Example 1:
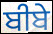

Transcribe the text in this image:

ਬੀਬੇ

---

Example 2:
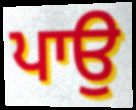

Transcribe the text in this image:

ਪਾਉ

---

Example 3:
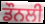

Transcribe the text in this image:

ਡੌਨਲੀ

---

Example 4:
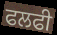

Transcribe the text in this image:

ਫਲਫੀ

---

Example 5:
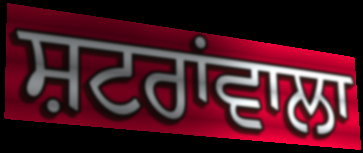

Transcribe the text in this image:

ਸ਼ਟਰਾਂਵਾਲਾ